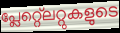
പ്ലേറ്റ്ലെറ്റുകളുടെ